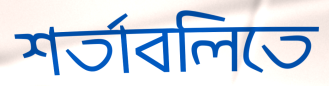
শর্তাবলিতে